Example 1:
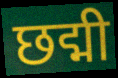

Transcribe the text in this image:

छद्मी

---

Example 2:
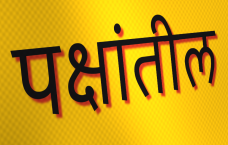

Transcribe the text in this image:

पक्षांतील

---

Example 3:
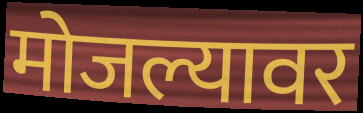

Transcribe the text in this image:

मोजल्यावर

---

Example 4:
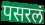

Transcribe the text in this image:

पसरलं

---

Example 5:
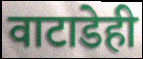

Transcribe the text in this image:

वाटाडेही